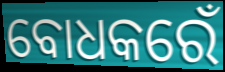
ବୋଧକରେଁ